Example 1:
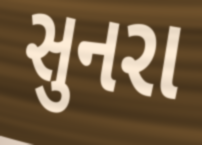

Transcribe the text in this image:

સુનરા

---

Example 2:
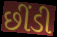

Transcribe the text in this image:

છીંડી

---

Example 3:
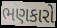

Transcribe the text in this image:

ભણકારો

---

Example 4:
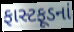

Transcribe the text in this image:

ફાસ્ટફૂડનાં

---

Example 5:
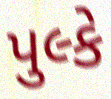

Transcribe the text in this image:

પુલ્કે